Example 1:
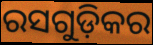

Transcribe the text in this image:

ରସଗୁଡ଼ିକର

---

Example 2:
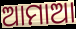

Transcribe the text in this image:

ଆମାଆ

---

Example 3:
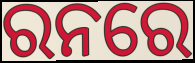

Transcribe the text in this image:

ରନରେ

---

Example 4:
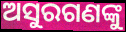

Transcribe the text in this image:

ଅସୁରଗଣଙ୍କୁ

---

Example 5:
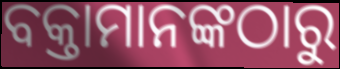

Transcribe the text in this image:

ବକ୍ତାମାନଙ୍କଠାରୁ